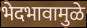
भेदभावामुळे